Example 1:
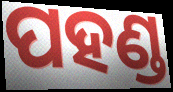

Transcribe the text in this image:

ପହଣ୍ଡ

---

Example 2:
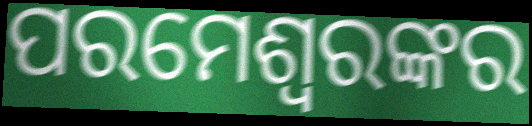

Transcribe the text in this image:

ପରମେଶ୍ୱରଙ୍କର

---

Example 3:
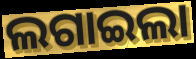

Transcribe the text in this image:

ଲଗାଇଲା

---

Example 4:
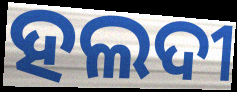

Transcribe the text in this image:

ହଲଦୀ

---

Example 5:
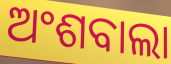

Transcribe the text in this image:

ଅଂଶବାଲା